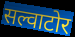
सल्वाटोर